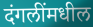
दंगलींमधील